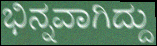
ಭಿನ್ನವಾಗಿದ್ದು